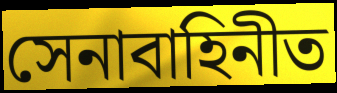
সেনাবাহিনীত